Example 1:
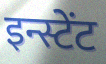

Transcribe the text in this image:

इन्स्टेंट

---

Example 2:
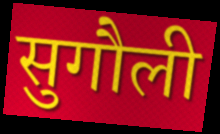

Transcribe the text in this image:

सुगौली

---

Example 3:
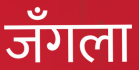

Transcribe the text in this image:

जँगला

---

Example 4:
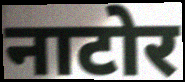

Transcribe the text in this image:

नाटोर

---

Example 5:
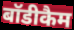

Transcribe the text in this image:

बॉडीकैम